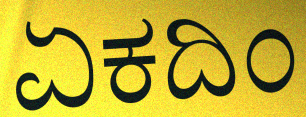
ಏಕದಿಂ